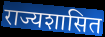
राज्यशासित